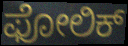
ಫೋಲಿಕ್